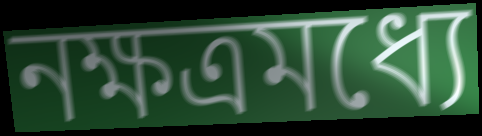
নক্ষত্রমধ্যে